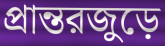
প্রান্তরজুড়ে